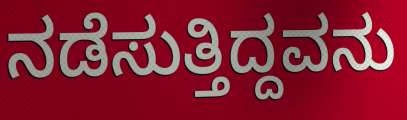
ನಡೆಸುತ್ತಿದ್ದವನು